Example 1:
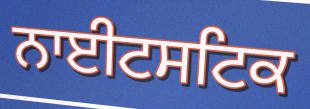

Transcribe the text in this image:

ਨਾਈਟਸਟਿਕ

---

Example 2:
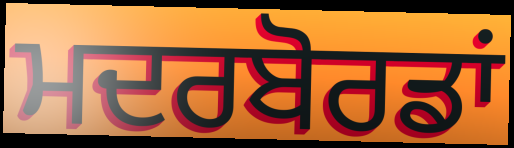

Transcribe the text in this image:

ਮਦਰਬੋਰਡਾਂ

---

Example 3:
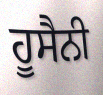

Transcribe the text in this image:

ਹੂਸੈਨੀ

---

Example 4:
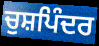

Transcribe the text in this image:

ਚੁਸ਼ਪਿੰਦਰ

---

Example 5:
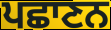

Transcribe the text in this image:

ਪਛਾਣਨ